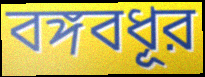
বঙ্গবধূর